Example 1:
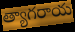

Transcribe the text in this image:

త్యాగరాయ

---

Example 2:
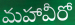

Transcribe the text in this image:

మహావీరో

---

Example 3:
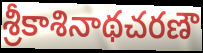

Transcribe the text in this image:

శ్రీకాశినాథచరణౌ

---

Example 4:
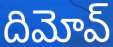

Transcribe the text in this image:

దిమోవ్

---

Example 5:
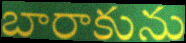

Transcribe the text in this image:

బారాకును